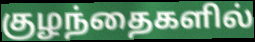
குழந்தைகளில்